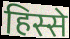
हिस्‍से